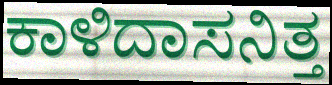
ಕಾಳಿದಾಸನಿತ್ತ